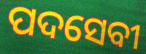
ପଦସେବୀ